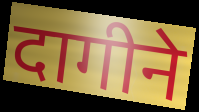
दागीने